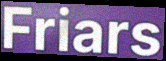
Friars